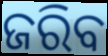
ଜରିବ